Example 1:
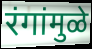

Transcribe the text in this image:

रंगांमुळे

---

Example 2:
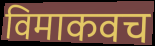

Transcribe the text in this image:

विमाकवच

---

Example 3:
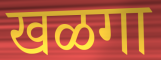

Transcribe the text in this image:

खळगा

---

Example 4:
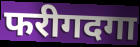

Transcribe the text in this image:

फरीगदगा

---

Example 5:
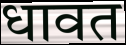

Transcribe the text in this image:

धावत